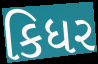
કિધર